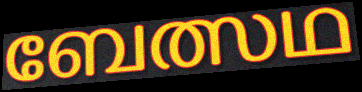
ബേത്സഥ